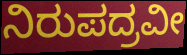
ನಿರುಪದ್ರವೀ